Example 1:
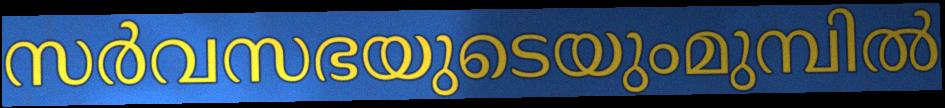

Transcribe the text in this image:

സർവസഭയുടെയുംമുമ്പിൽ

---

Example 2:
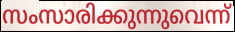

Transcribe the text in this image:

സംസാരിക്കുന്നുവെന്ന്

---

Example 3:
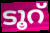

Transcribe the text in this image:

ടൂറ്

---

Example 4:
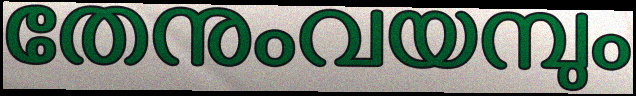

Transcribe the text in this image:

തേനുംവയമ്പും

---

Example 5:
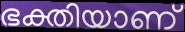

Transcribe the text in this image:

ഭക്തിയാണ്